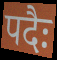
पदैः